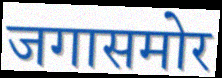
जगासमोर